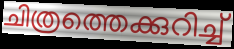
ചിത്രത്തെക്കുറിച്ച്